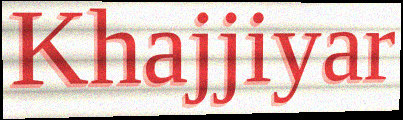
Khajjiyar